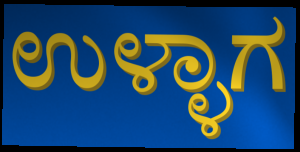
ಉಳ್ಳಾಗ